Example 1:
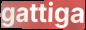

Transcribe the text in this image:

gattiga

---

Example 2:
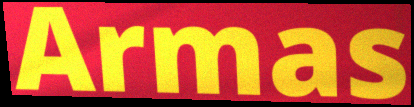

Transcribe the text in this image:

Armas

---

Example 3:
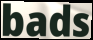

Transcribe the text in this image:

bads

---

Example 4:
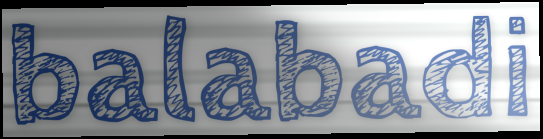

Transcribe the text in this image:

balabadi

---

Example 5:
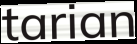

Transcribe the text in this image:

tarian